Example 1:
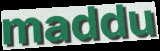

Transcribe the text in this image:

maddu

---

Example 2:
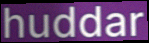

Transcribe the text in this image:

huddar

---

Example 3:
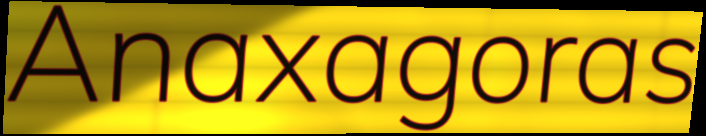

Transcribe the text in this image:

Anaxagoras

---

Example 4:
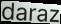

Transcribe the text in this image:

daraz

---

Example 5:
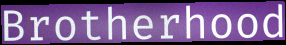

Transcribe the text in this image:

Brotherhood